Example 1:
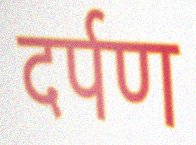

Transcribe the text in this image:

दर्पण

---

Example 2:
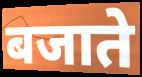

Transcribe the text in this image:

बजाते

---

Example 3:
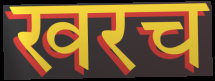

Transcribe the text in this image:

खरच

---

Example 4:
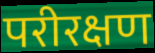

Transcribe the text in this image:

परीरक्षण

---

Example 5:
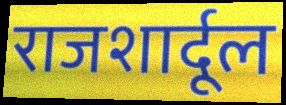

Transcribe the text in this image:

राजशार्दूल